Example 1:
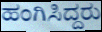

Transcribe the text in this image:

ಹಂಗಿಸಿದ್ದರು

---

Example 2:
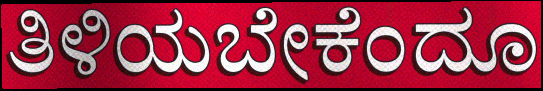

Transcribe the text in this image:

ತಿಳಿಯಬೇಕೆಂದೂ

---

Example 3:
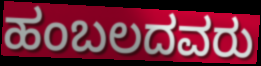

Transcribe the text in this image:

ಹಂಬಲದವರು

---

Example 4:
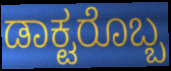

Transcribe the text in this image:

ಡಾಕ್ಟರೊಬ್ಬ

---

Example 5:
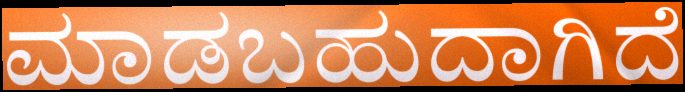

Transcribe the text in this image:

ಮಾಡಬಹುದಾಗಿದೆ